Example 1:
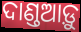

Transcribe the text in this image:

ଦାଣ୍ଡଆଡ଼ୁ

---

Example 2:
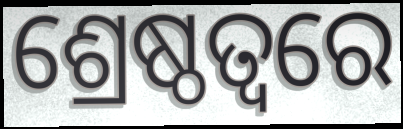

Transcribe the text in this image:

ଶ୍ରେଷ୍ଠତ୍ୱରେ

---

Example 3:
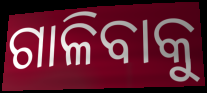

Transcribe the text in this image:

ଗାଳିବାକୁ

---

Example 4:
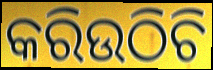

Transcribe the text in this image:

କରିଉଠିଚି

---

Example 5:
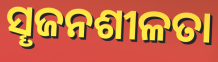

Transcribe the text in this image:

ସୄଜନଶୀଳତା